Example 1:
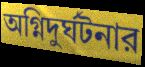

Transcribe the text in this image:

অগ্নিদুর্ঘটনার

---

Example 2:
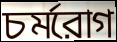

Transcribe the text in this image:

চর্মরোগ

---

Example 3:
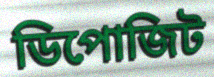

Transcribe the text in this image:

ডিপোজিট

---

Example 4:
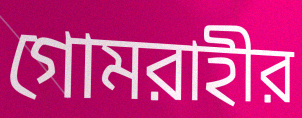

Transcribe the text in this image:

গোমরাহীর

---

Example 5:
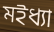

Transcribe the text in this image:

মইধ্যা